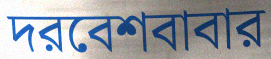
দরবেশবাবার